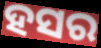
ହସର